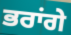
ਭਰਾਂਗੇ